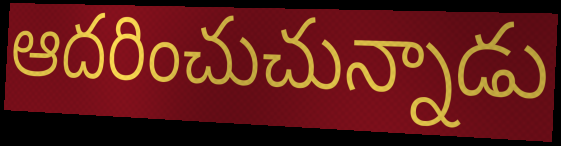
ఆదరించుచున్నాడు